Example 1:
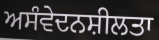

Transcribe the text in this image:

ਅਸੰਵੇਦਨਸ਼ੀਲਤਾ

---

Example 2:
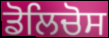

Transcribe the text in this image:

ਡੋਲਿਚੋਸ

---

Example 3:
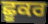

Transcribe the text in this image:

ਛੂਕਰ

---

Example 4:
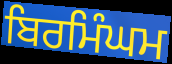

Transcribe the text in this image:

ਬਿਰਮਿੰਘਮ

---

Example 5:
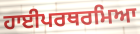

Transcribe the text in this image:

ਹਾਈਪਰਥਰਮਿਆ